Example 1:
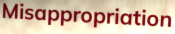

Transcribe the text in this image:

Misappropriation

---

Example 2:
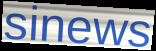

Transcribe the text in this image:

sinews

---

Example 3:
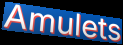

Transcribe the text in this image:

Amulets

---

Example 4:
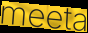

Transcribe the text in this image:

meeta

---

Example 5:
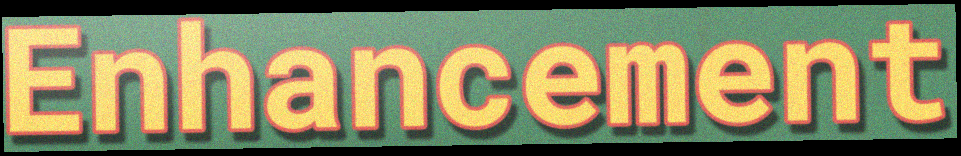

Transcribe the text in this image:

Enhancement